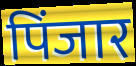
पिंजार